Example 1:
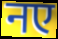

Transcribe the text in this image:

नए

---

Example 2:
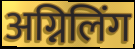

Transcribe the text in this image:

अग्निलिंग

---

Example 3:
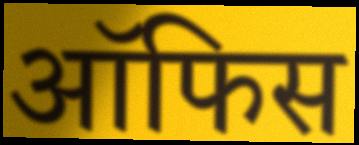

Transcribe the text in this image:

ऑफिस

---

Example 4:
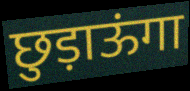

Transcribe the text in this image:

छुड़ाऊंगा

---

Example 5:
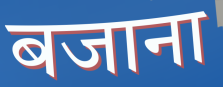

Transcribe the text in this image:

बजाना